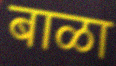
बाळा